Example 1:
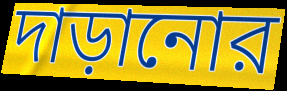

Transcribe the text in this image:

দাড়ানোর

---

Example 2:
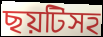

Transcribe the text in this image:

ছয়টিসহ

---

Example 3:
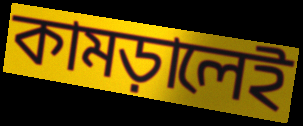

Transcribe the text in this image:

কামড়ালেই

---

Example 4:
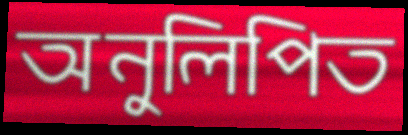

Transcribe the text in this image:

অনুলিপিত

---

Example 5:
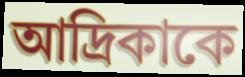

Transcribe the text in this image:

আদ্রিকাকে